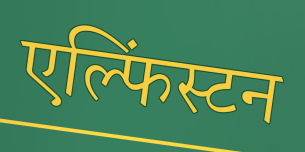
एल्फिंस्टन